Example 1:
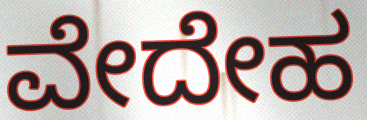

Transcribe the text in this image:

ವೇದೇಹ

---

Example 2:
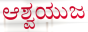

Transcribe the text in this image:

ಆಶ್ವಯುಜ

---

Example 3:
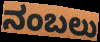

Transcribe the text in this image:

ನಂಬಲು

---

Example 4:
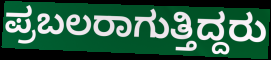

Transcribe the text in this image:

ಪ್ರಬಲರಾಗುತ್ತಿದ್ದರು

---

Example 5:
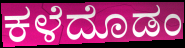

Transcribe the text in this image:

ಕಳೆದೊಡಂ